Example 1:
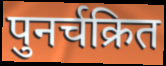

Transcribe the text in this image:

पुनर्चक्रित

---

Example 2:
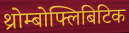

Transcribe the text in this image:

थ्रोम्बोफ्लिबिटिक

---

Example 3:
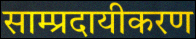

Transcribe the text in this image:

साम्प्रदायीकरण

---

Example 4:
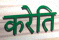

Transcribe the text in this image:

करेति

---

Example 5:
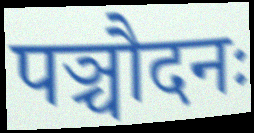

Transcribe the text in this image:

पञ्चौदनः